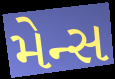
મેન્સ